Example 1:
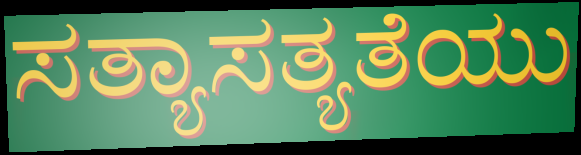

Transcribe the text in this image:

ಸತ್ಯಾಸತ್ಯತೆಯು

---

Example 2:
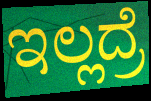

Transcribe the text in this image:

ಇಲ್ಲದ್ರೆ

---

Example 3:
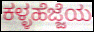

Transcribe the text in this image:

ಕಳ್ಳಹೆಜ್ಜೆಯ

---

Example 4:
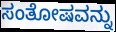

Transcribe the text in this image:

ಸಂತೋಷವನ್ನು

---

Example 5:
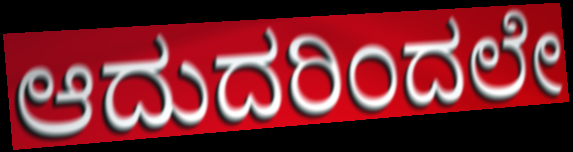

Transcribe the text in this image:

ಆದುದರಿಂದಲೇ